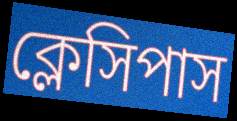
ক্লেসিপাস